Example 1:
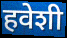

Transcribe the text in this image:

हवेशी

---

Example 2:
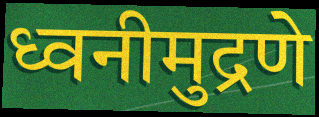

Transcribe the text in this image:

ध्वनीमुद्रणे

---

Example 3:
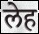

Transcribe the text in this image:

लेह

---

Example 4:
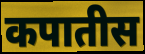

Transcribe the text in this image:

कपातीस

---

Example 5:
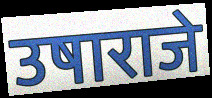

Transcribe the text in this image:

उषाराजे